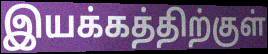
இயக்கத்திற்குள்